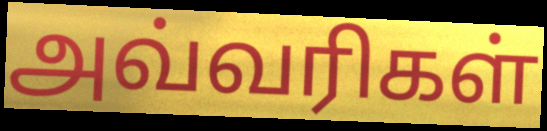
அவ்வரிகள்